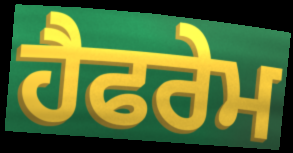
ਹੈਫਰੇਮ